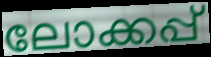
ലോക്കപ്പ്